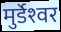
मुर्डेश्वर